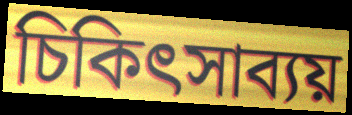
চিকিৎসাব্যয়